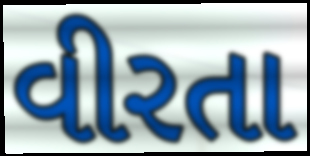
વીરતા